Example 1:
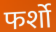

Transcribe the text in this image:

फर्शो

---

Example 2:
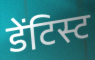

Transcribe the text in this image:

डेंटिस्ट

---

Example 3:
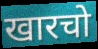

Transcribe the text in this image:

खारचो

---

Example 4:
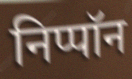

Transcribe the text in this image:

निप्पॉन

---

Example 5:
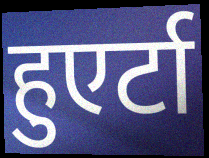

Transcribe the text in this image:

हुएर्टा